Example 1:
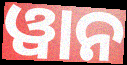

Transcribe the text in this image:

ୱାନ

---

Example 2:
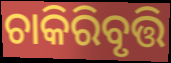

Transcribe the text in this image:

ଚାକିରିବୃତ୍ତି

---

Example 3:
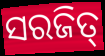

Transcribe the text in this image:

ସରଜିତ୍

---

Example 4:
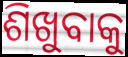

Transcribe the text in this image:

ଶିଖୁବାକୁ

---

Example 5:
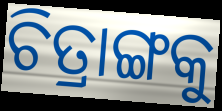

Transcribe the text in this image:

ଚିତ୍ରାଙ୍ଗକୁ